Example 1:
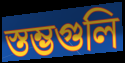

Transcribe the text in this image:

স্তম্ভগুলি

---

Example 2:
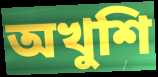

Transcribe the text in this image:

অখুশি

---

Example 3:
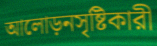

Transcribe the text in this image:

আলোড়নসৃষ্টিকারী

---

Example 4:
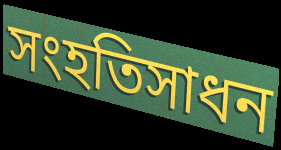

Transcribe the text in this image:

সংহতিসাধন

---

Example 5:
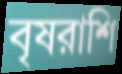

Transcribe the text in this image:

বৃষরাশি